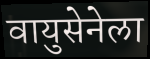
वायुसेनेला